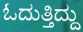
ಓದುತ್ತಿದ್ದು